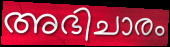
അഭിചാരം